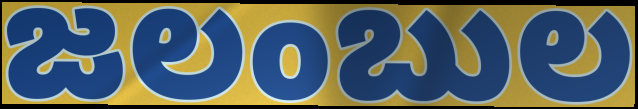
జలంబుల